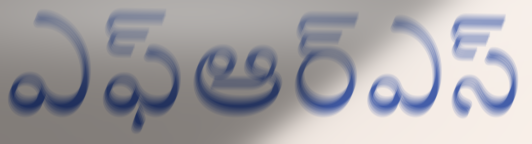
ఎఫ్ఆర్ఎస్